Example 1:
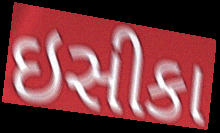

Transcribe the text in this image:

ઇસીકા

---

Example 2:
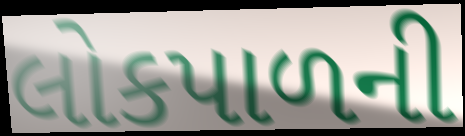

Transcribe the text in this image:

લોકપાળની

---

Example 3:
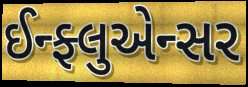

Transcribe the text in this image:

ઈન્ફ્લુએન્સર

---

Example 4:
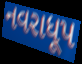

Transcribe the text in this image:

નવરાધૂપ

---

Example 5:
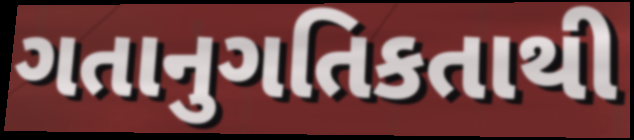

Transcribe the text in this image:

ગતાનુગતિકતાથી